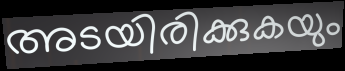
അടയിരിക്കുകയും